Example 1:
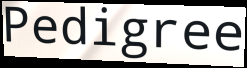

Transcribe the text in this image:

Pedigree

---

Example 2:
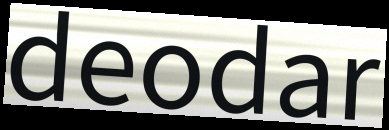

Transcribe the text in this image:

deodar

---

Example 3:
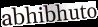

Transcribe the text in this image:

abhibhuto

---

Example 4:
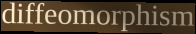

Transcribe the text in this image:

diffeomorphism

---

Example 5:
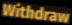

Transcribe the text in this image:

Withdraw